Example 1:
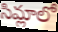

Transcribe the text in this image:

సిమ్లాలో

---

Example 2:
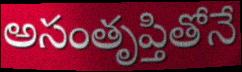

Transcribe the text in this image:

అసంతృప్తితోనే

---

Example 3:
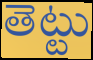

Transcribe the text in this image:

తెట్టు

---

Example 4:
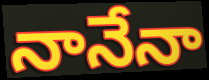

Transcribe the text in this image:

నానేనా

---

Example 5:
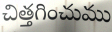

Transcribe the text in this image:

చిత్తగించుము